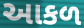
આકળ